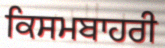
ਕਿਸਮਬਾਹਰੀ